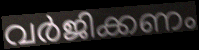
വർജിക്കണം